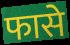
फासे